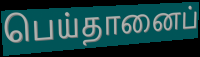
பெய்தானைப்